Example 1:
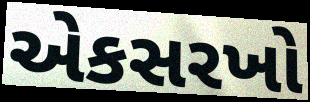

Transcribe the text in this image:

એકસરખો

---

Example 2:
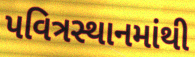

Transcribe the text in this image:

પવિત્રસ્થાનમાંથી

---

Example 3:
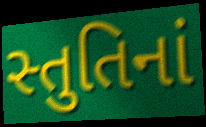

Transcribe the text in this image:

સ્તુતિનાં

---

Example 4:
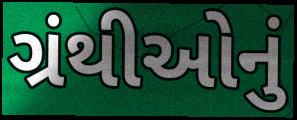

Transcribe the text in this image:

ગ્રંથીઓનું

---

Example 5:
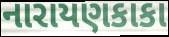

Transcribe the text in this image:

નારાયણકાકા